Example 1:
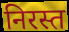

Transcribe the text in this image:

निरस्त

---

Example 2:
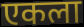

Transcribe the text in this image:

एकला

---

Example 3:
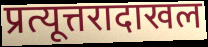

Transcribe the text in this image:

प्रत्यूत्तरादाखल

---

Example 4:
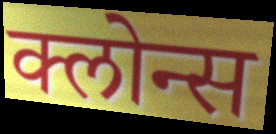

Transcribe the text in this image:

क्लोन्स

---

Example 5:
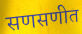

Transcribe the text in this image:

सणसणीत